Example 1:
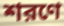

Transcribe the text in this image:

শরণে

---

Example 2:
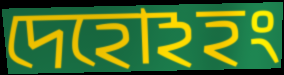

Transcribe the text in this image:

দেহোঽহং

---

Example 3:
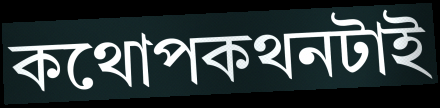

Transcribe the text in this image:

কথোপকথনটাই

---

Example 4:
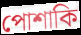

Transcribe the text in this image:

পোশাকি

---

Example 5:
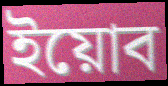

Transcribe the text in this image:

ইয়োব